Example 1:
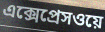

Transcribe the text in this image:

এক্সেপ্রেসওয়ে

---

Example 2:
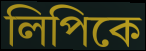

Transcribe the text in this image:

লিপিকে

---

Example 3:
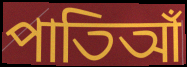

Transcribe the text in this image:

পাতিআঁ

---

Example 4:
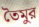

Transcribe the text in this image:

তৈমুর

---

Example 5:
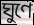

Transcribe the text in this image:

ঘুণে